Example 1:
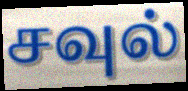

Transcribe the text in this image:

சவுல்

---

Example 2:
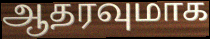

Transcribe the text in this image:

ஆதரவுமாக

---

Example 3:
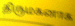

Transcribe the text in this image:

திருமகனாக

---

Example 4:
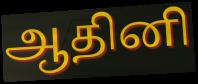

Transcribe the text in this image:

ஆதினி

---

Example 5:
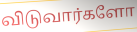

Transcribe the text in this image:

விடுவார்களோ